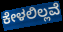
ಕೇಳಲಿಲ್ಲವೆ